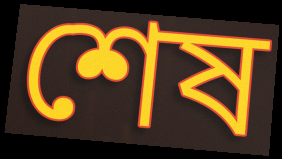
শেষ